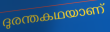
ദുരന്തകഥയാണ്